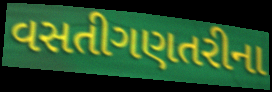
વસતીગણતરીના